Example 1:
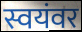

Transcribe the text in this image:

स्वयंवर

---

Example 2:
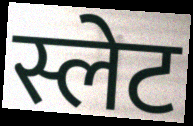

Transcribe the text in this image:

स्लेट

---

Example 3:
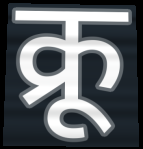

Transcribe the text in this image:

क्रू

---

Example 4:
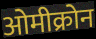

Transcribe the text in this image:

ओमीक्रोन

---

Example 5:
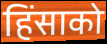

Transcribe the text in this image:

हिंसाको